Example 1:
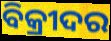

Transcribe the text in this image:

ବିକ୍ରୀଦର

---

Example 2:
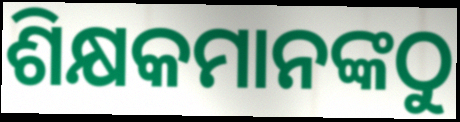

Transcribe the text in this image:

ଶିକ୍ଷକମାନଙ୍କଠୁ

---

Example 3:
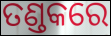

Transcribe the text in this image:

ତଣ୍ଡକରେ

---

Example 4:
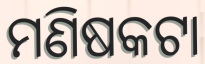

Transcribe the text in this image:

ମଣିଷକଟା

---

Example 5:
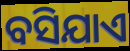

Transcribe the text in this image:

ବସିଯାଏ